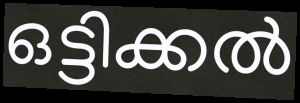
ഒട്ടിക്കൽ